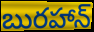
బురహాన్